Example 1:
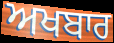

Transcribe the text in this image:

ਅਖਬਾਰ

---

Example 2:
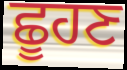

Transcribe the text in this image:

ਛੂਹਣ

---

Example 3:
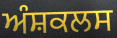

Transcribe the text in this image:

ਅੰਸ਼ਕਲਸ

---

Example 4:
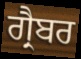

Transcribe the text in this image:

ਗ੍ਰੈਬਰ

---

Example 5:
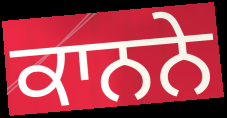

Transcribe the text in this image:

ਕਾਨਨੇ